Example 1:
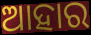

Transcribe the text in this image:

ଆହାର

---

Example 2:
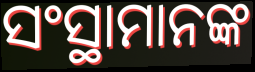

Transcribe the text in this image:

ସଂସ୍ଥାମାନଙ୍କ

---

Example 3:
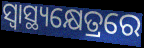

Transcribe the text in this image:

ସ୍ୱାସ୍ଥ୍ୟକ୍ଷେତ୍ରରେ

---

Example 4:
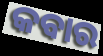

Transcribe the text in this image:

କବାର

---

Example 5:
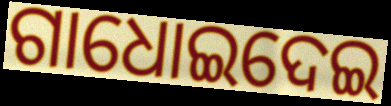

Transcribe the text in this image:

ଗାଧୋଇଦେଇ